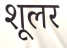
शूलर